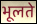
भूलते